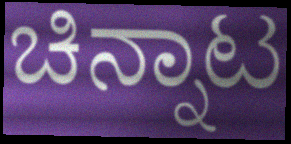
ಚಿನ್ನಾಟ